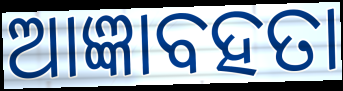
ଆଜ୍ଞାବହତା